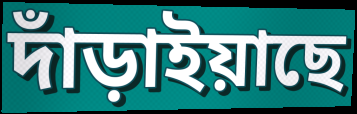
দাঁড়াইয়াছে